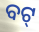
ବଟ୍